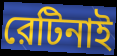
রেটিনাই